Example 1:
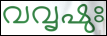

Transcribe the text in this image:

വവൃഷുഃ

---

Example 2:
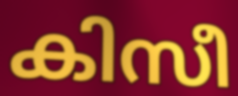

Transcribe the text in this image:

കിസീ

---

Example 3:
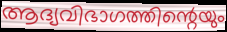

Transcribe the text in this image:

ആദ്യവിഭാഗത്തിന്റെയും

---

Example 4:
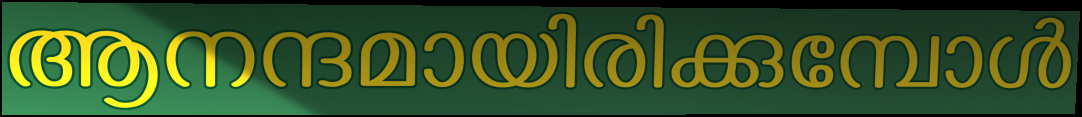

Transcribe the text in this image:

ആനന്ദമായിരിക്കുമ്പോൾ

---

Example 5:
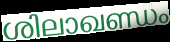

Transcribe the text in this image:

ശിലാഖണ്ഡം